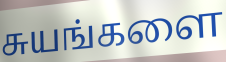
சுயங்களை